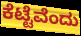
ಕೆಟ್ಟೆವೆಂದು